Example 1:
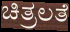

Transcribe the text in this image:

ಚಿತ್ರಲತೆ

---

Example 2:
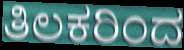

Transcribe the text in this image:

ತಿಲಕರಿಂದ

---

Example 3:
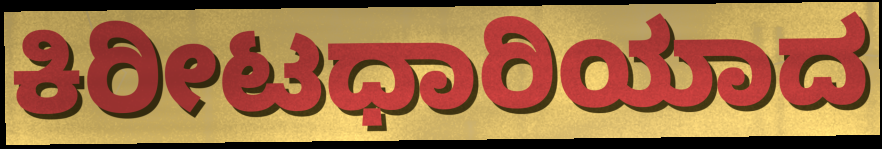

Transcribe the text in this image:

ಕಿರೀಟಧಾರಿಯಾದ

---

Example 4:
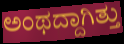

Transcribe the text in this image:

ಅಂಥದ್ದಾಗಿತ್ತು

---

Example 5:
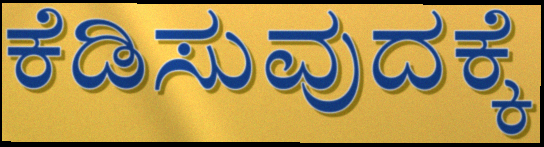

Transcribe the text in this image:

ಕೆಡಿಸುವುದಕ್ಕೆ